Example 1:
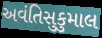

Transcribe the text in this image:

અવંતિસુકુમાલ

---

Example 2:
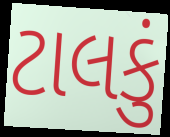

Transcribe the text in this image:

ટાલકું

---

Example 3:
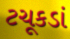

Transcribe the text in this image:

ટચૂકડાં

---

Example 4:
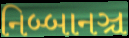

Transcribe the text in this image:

નિબ્બાનઞ્ચ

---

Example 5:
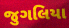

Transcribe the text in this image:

જુગલિયા